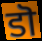
डॊ